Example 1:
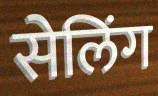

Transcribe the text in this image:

सेलिंग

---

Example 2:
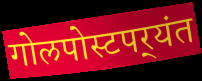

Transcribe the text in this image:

गोलपोस्टपर्यंत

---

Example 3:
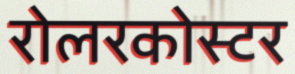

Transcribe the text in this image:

रोलरकोस्टर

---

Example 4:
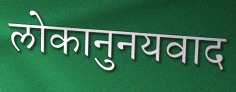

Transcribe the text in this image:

लोकानुनयवाद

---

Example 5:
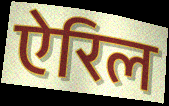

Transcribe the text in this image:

ऐरिल